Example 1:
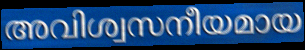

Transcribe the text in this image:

അവിശ്വസനീയമായ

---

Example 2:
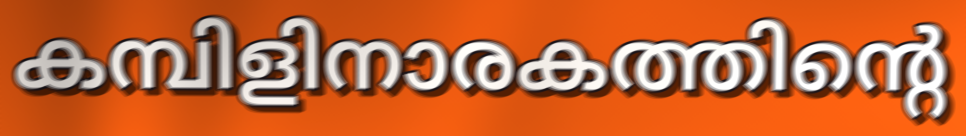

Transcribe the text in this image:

കമ്പിളിനാരകത്തിന്റെ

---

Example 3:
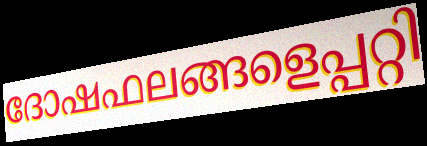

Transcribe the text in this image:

ദോഷഫലങ്ങളെപ്പറ്റി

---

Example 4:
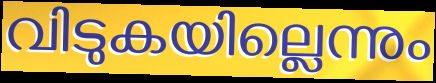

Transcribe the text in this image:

വിടുകയില്ലെന്നും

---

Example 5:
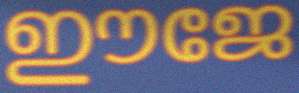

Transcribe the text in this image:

ഈജേ